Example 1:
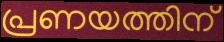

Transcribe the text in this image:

പ്രണയത്തിന്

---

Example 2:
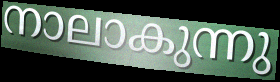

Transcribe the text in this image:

നാലാകുന്നു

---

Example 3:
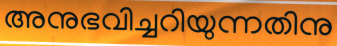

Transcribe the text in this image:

അനുഭവിച്ചറിയുന്നതിനു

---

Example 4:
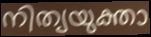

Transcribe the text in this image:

നിത്യയുക്താ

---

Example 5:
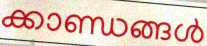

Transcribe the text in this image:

ക്കാണ്ഡങ്ങൾ